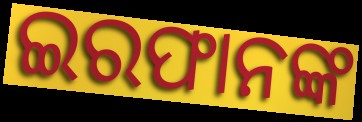
ଇରଫାନଙ୍କ